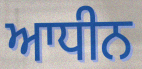
ਆਧੀਨ